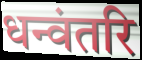
धन्वंतरि